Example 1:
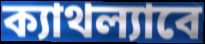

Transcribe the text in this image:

ক্যাথল্যাবে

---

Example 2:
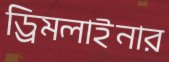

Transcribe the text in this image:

ড্রিমলাইনার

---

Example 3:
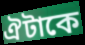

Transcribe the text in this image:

ঐটাকে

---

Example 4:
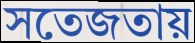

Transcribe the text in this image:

সতেজতায়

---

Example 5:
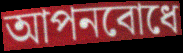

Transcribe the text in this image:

আপনবোধে